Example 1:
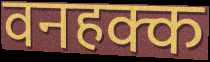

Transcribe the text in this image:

वनहक्क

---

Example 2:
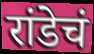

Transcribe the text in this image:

रांडेचं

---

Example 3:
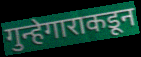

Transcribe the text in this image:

गुन्हेगाराकडून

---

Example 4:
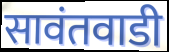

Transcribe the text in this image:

सावंतवाडी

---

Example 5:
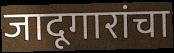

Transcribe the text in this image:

जादूगारांचा